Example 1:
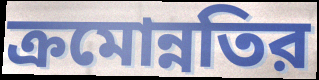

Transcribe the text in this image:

ক্রমোন্নতির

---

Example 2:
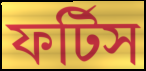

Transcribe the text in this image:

ফর্টিস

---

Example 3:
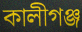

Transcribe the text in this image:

কালীগঞ্জ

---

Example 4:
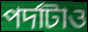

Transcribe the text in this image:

পর্দাটাও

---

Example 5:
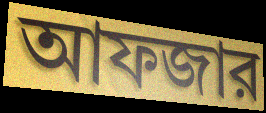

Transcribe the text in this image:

আফজার